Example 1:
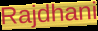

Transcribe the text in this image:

Rajdhani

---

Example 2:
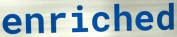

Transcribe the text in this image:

enriched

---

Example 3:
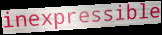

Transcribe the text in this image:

inexpressible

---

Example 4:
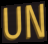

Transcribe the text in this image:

UN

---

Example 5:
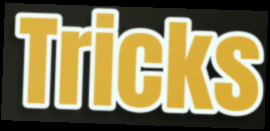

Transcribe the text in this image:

Tricks